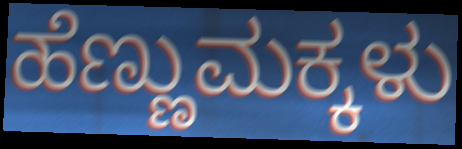
ಹೆಣ್ಣುಮಕ್ಕಳು